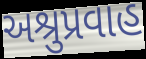
અશ્રુપ્રવાહ